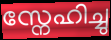
സ്നേഹിച്ചു